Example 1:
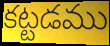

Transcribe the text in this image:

కట్టడము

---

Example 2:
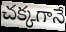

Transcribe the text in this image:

చక్కగానే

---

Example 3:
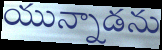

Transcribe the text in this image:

యున్నాడను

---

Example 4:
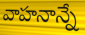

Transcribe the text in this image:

వాహనాన్నే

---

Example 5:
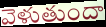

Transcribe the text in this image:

వెళుతుందా